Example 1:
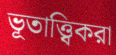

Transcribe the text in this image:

ভূতাত্ত্বিকরা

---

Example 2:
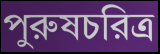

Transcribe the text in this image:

পুরুষচরিত্র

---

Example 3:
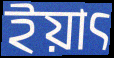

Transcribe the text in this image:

ইয়াৎ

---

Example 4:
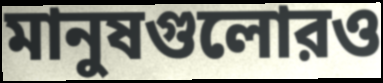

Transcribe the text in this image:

মানুষগুলোরও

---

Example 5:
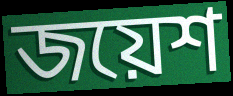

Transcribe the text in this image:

জয়েশ